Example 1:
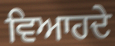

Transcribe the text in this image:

ਵਿਆਹਦੇ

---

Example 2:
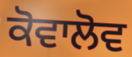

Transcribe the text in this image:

ਕੋਵਾਲੋਵ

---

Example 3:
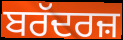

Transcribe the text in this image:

ਬਰੱਦਰਜ਼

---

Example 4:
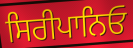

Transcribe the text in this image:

ਸਿਰੀਪਾਨਿਓ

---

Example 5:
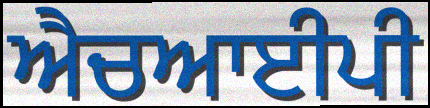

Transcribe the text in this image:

ਐਚਆਈਪੀ